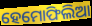
ହେମୋଫିଲିଆ